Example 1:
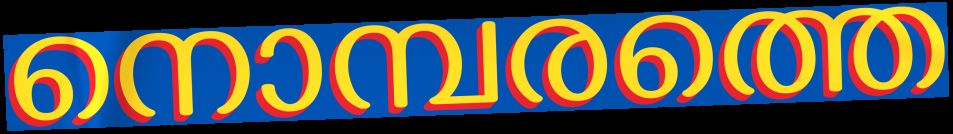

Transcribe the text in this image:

നൊമ്പരത്തെ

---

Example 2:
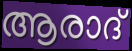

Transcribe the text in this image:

ആരാദ്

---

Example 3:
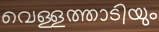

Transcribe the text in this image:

വെള്ളത്താടിയും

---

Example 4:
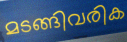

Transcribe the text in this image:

മടങ്ങിവരിക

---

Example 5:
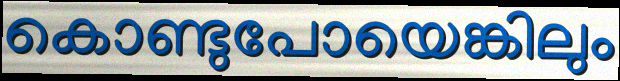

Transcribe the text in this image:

കൊണ്ടുപോയെങ്കിലും